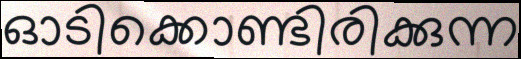
ഓടിക്കൊണ്ടിരിക്കുന്ന